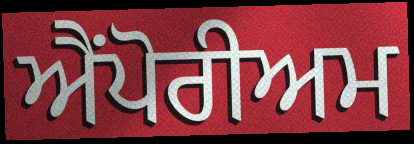
ਐਂਪੋਰੀਅਮ